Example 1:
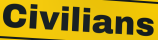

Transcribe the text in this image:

Civilians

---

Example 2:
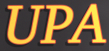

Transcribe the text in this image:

UPA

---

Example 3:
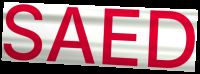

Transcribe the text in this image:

SAED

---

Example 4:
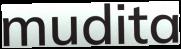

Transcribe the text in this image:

mudita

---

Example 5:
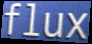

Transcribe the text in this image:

flux